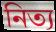
নিত্য